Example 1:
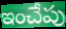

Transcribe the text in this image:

ఇంచేపు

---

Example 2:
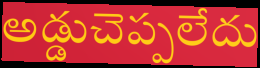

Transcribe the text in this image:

అడ్డుచెప్పలేదు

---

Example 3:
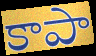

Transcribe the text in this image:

కాపా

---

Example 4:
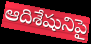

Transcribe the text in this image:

ఆదిశేషునిపై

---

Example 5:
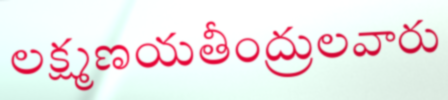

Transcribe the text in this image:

లక్ష్మణయతీంద్రులవారు